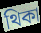
থিকা